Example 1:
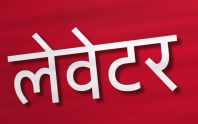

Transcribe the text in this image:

लेवेटर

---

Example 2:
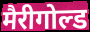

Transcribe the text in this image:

मैरीगोल्ड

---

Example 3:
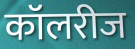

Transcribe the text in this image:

कॉलरीज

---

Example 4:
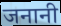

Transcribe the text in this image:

जनानी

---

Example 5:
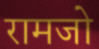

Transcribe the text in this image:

रामजो